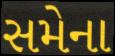
સમેના